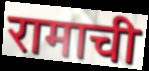
रामाची